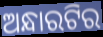
ଅନ୍ଧାରଟିର